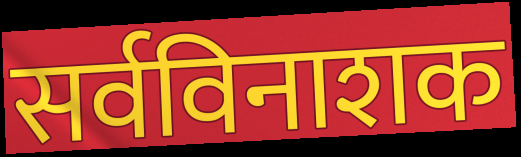
सर्वविनाशक